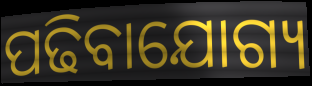
ପଢିବାଯୋଗ୍ୟ